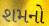
શમનો